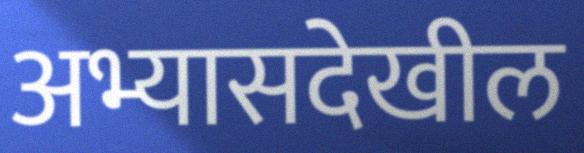
अभ्यासदेखील